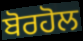
ਬੋਰਹੋਲ